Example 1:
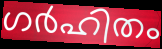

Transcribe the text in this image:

ഗർഹിതം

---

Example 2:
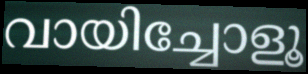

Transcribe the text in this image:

വായിച്ചോളൂ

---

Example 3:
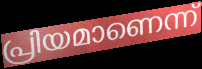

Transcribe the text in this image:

പ്രിയമാണെന്ന്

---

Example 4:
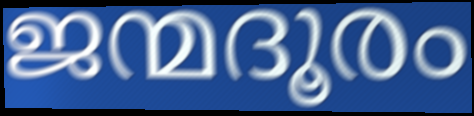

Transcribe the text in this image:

ജന്മദൂരം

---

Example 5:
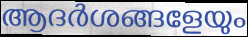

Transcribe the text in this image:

ആദർശങ്ങളേയും